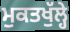
ਮੁਕਤਖੁੱਲ੍ਹੇ